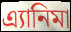
এ্যানিমা